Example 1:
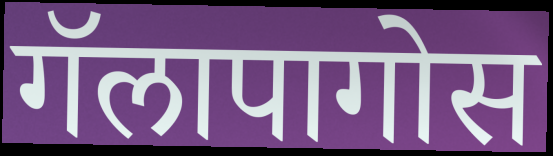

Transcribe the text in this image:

गॅलापागोस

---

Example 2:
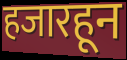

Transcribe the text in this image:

हजारहून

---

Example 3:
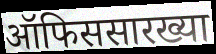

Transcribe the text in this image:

ऑफिससारख्या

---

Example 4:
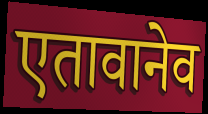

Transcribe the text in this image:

एतावानेव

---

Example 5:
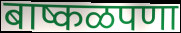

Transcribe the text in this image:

बाष्कळपणा